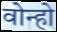
वोन्हो